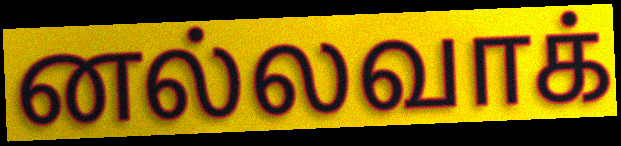
னல்லவாக்